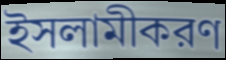
ইসলামীকরণ